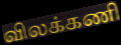
விலக்கணி